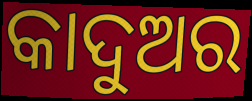
କାଦୁଅର